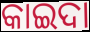
କାଇଦା